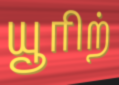
யூரிற்